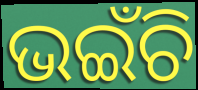
ଭଇଁଚି